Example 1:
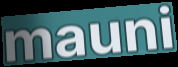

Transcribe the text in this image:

mauni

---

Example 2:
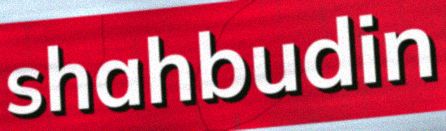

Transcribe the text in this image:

shahbudin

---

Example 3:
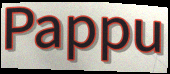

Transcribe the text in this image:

Pappu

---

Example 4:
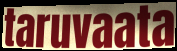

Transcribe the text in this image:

taruvaata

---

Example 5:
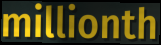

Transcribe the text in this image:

millionth